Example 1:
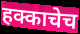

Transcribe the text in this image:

हक्काचेच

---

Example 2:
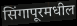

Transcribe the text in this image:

सिंगापूरमधील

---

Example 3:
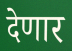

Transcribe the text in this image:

देणार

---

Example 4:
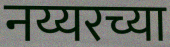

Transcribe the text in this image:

नय्यरच्या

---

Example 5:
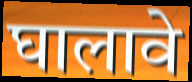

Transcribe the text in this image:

घालावे